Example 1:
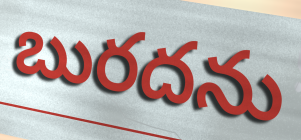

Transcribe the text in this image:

బురదను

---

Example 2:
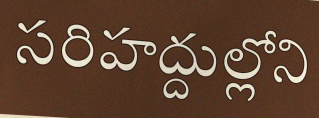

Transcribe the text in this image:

సరిహద్దుల్లోని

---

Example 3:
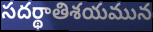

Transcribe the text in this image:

సదర్థాతిశయమున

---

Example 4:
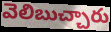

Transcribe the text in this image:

వెలిబుచ్చారు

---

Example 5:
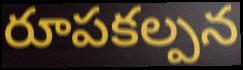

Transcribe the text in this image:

రూపకల్పన